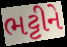
ભટ્ટીને